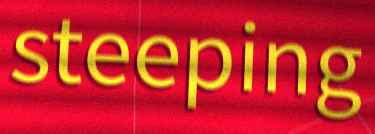
steeping